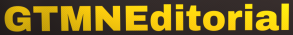
GTMNEditorial